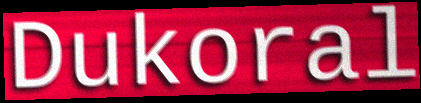
Dukoral